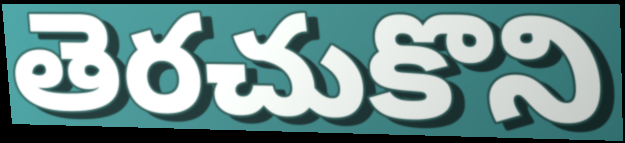
తెరచుకొని